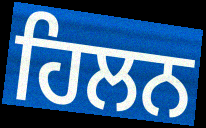
ਹਿਲਨ